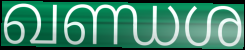
ഖണ്ഡശ